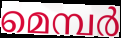
മെമ്പർ